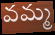
వమ్మ